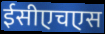
ईसीएचएस